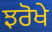
ਝਰੋਖੇ